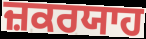
ਜ਼ਕਰਯਾਹ